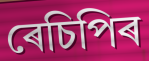
ৰেচিপিৰ